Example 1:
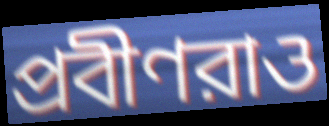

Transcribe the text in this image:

প্রবীণরাও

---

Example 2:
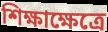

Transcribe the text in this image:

শিক্ষাক্ষেত্রে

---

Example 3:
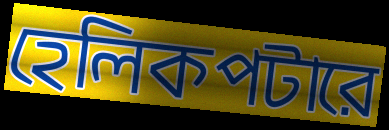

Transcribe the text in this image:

হেলিকপটারে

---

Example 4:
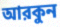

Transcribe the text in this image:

আরকুন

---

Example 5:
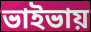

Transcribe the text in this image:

ভাইভায়